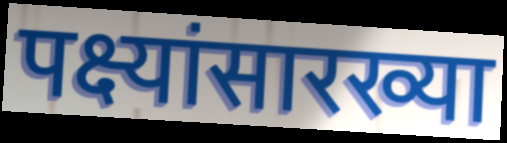
पक्ष्यांसारख्या